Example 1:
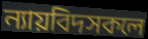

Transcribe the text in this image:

ন্যায়বিদসকলে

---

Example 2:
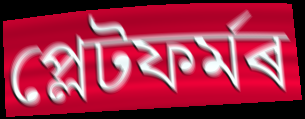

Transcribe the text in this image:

প্লেটফৰ্মৰ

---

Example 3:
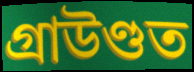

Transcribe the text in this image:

গ্ৰাউণ্ডত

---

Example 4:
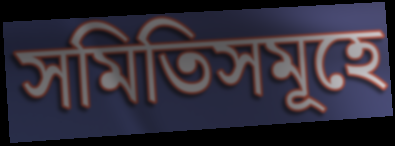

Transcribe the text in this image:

সমিতিসমূহে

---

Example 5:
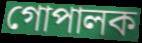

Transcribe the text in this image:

গোপালক